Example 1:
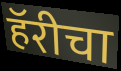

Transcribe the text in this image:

हॅरीचा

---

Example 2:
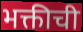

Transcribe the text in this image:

भक्तीची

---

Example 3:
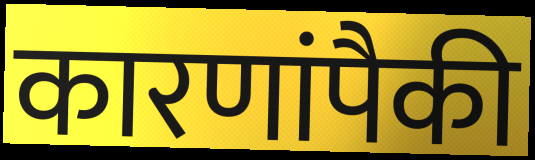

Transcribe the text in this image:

कारणांपैकी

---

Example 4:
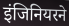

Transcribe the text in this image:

इंजिनियरने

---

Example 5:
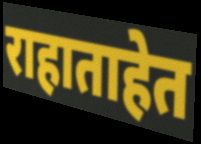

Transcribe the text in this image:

राहाताहेत